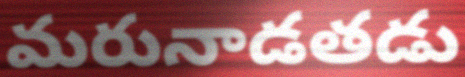
మరునాడతడు